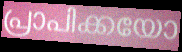
പ്രാപിക്കയോ